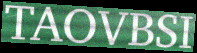
TAOVBSI